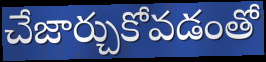
చేజార్చుకోవడంతో